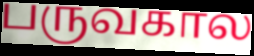
பருவகால